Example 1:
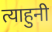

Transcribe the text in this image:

त्याहुनी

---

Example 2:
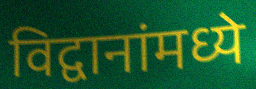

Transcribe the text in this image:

विद्वानांमध्ये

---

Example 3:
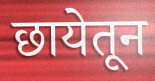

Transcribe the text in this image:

छायेतून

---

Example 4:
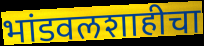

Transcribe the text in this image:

भांडवलशाहीचा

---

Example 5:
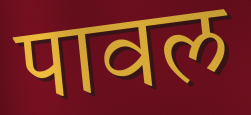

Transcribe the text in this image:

पावल